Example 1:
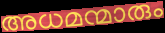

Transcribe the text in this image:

അധമന്മാരും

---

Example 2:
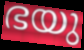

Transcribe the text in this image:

ഭയു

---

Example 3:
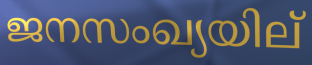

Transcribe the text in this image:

ജനസംഖ്യയില്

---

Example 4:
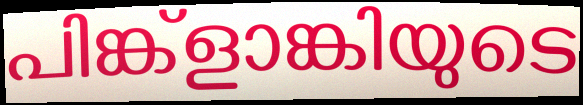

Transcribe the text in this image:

പിങ്ക്ളാങ്കിയുടെ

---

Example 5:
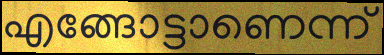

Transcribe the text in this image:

എങ്ങോട്ടാണെന്ന്